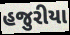
હજુરીયા